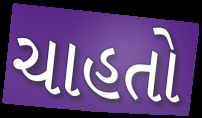
ચાહતો